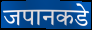
जपानकडे